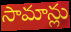
సామాన్లు